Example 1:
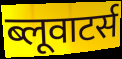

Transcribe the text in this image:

ब्लूवाटर्स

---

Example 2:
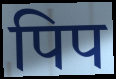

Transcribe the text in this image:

पिप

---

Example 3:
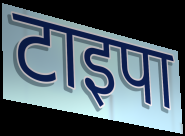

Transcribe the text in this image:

टाइपा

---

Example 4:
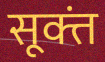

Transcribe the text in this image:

सूक्तं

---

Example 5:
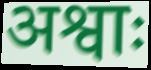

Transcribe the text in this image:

अश्वाः